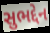
સુભદ્દેન